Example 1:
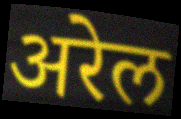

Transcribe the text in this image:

अरेल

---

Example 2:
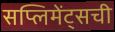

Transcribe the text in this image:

सप्लिमेंट्सची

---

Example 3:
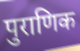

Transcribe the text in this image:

पुराणिक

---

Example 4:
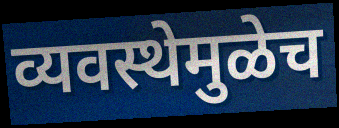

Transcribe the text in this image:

व्यवस्थेमुळेच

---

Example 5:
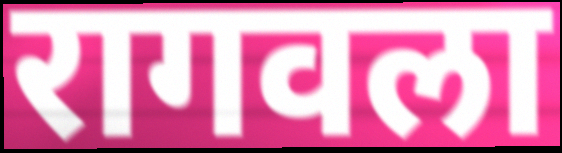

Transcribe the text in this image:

रागवला